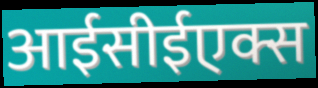
आईसीईएक्स